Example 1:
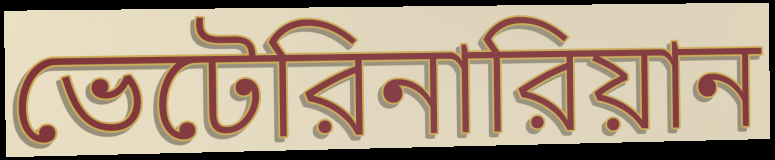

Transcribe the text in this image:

ভেটেরিনারিয়ান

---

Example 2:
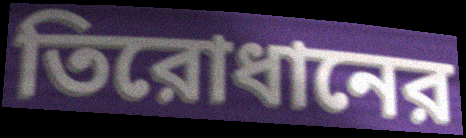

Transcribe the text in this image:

তিরোধানের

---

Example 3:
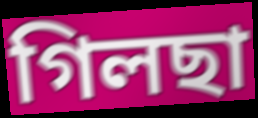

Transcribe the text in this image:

গিলছা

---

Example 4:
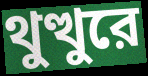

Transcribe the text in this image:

থুত্থুরে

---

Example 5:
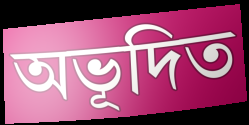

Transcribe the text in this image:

অভূদিত